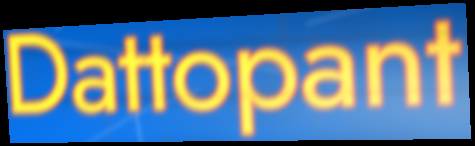
Dattopant